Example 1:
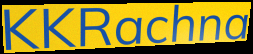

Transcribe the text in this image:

KKRachna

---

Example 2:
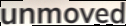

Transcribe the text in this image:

unmoved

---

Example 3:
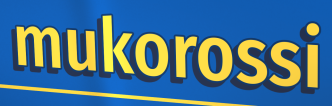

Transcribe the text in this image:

mukorossi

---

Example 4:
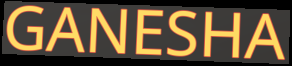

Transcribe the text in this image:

GANESHA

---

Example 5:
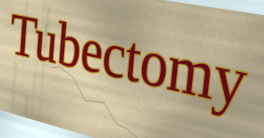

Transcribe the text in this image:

Tubectomy